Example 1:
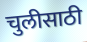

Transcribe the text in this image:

चुलीसाठी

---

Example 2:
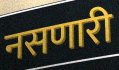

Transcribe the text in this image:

नसणारी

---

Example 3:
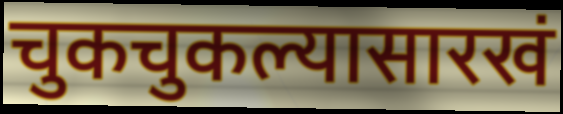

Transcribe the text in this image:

चुकचुकल्यासारखं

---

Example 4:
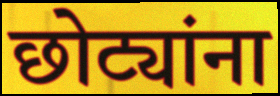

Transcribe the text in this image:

छोट्यांना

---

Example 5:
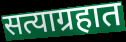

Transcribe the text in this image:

सत्याग्रहात